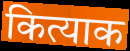
कित्याक